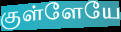
குள்ளேயே